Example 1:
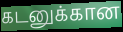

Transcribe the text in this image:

கடனுக்கான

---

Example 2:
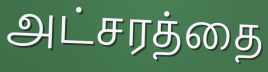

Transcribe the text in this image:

அட்சரத்தை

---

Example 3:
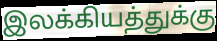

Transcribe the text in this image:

இலக்கியத்துக்கு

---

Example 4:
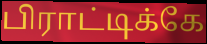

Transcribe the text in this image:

பிராட்டிக்கே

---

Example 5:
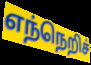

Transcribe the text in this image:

எந்நெறிச்